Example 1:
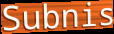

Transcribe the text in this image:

Subnis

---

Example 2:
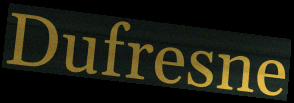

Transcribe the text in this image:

Dufresne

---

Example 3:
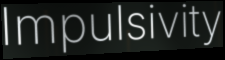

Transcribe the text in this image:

Impulsivity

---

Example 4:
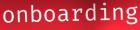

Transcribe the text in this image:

onboarding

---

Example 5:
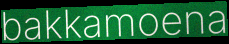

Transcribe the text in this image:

bakkamoena